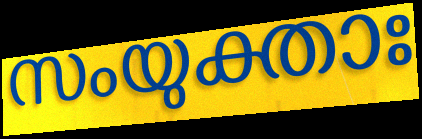
സംയുക്താഃ